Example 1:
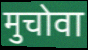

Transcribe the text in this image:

मुचोवा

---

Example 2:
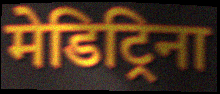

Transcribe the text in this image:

मेडिट्रिना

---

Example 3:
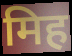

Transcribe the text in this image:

मिह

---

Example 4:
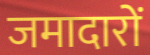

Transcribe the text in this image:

जमादारों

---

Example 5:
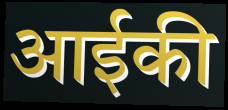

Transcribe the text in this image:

आईकी